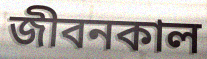
জীবনকাল